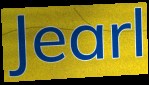
Jearl